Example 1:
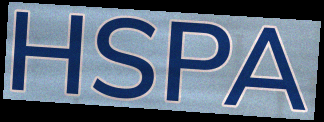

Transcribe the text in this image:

HSPA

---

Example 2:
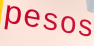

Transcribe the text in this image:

pesos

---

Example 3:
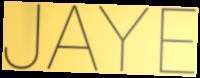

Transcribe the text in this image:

JAYE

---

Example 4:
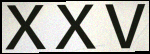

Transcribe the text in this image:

xxv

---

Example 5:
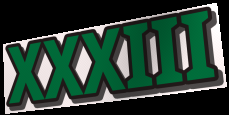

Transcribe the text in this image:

XXXIII